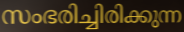
സംഭരിച്ചിരിക്കുന്ന